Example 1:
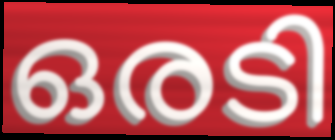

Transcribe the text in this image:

ഒരടി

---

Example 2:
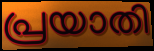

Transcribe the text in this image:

പ്രയാതി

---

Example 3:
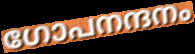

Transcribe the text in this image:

ഗോപനന്ദനം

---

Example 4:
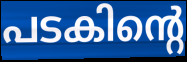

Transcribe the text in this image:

പടകിന്റെ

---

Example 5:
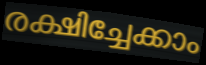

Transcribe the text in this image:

രക്ഷിച്ചേക്കാം